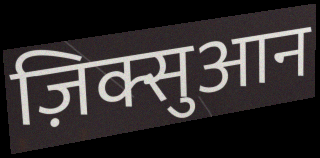
ज़िक्सुआन